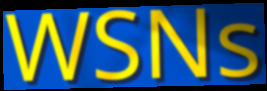
WSNs